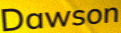
Dawson